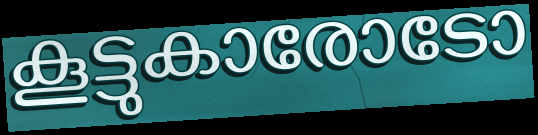
കൂട്ടുകാരോടോ